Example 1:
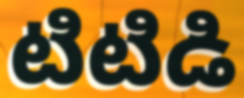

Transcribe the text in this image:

టిటిడి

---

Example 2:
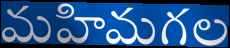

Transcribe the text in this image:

మహిమగల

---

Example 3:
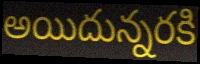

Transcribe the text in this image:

అయిదున్నరకి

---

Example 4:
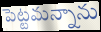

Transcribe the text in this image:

పెట్టమన్నాను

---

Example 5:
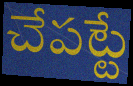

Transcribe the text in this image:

చేపట్టే